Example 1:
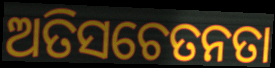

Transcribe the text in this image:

ଅତିସଚେତନତା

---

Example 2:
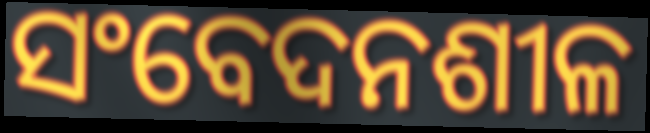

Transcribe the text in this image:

ସଂବେଦନଶୀଳ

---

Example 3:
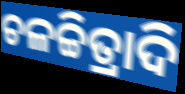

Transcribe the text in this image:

ଚଳଚ୍ଚିତ୍ରାଦି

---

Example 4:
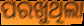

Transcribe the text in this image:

ପରଖୁଥିଲା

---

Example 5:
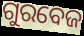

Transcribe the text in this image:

ଗୁରବେଜ